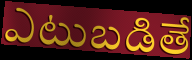
ఎటుబడితే